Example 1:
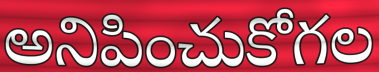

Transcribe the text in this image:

అనిపించుకోగల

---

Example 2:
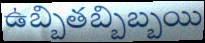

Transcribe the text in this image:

ఉబ్బితబ్బిబ్బయి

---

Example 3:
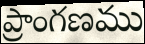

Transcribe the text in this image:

ప్రాంగణము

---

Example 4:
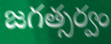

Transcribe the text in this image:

జగత్సర్వం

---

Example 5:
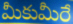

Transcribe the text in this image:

మీకుమీరే